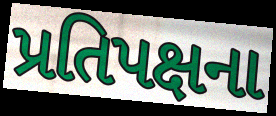
પ્રતિપક્ષના